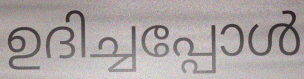
ഉദിച്ചപ്പോൾ